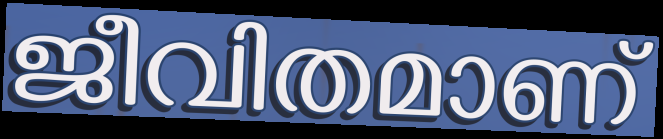
ജീവിതമാണ്